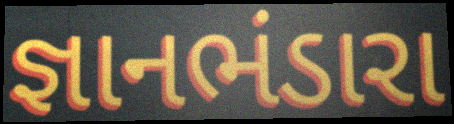
જ્ઞાનભંડારા